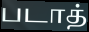
படாத்